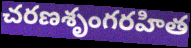
చరణశృంగరహిత